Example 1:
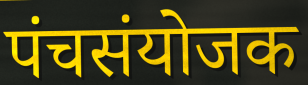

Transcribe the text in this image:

पंचसंयोजक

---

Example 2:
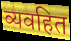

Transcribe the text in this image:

व्यवहित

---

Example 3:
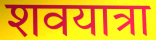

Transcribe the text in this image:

शवयात्रा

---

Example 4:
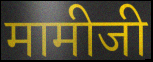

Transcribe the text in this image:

मामीजी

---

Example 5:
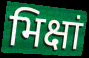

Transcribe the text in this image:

भिक्षां